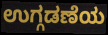
ಉಗ್ಗಡಣೆಯ